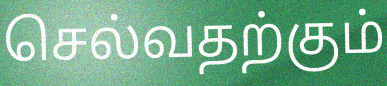
செல்வதற்கும்